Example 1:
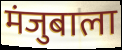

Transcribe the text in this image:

मंजुबाला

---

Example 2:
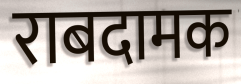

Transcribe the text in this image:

राबदामक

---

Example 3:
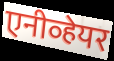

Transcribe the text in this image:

एनीव्हेयर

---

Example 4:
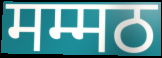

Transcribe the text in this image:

मम्मठ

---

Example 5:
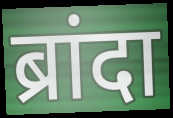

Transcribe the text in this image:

ब्रांदा